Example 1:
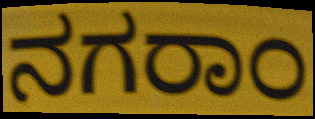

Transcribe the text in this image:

ನಗರಾಂ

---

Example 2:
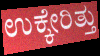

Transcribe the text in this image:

ಉಕ್ಕೇರಿತ್ತು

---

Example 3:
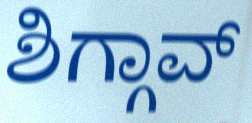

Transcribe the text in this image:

ಶಿಗ್ಗಾವ್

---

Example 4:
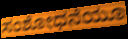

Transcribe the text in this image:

ಸಂಶೋಧನೆಯೂ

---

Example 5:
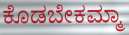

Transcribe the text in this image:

ಕೊಡಬೇಕಮ್ಮಾ